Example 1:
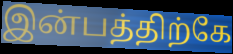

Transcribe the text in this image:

இன்பத்திற்கே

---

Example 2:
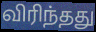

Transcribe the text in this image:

விரிந்தது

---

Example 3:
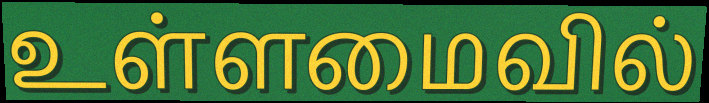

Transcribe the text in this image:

உள்ளமைவில்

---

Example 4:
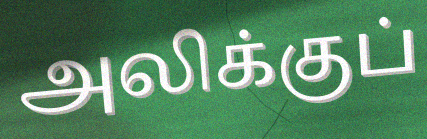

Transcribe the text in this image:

அலிக்குப்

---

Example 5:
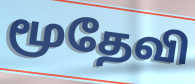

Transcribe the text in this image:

மூதேவி